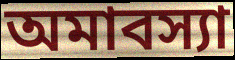
অমাবস্যা